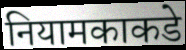
नियामकाकडे